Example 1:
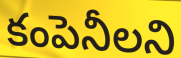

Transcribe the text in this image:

కంపెనీలని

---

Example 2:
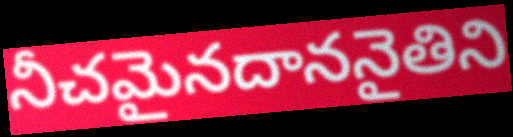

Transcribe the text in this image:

నీచమైనదాననైతిని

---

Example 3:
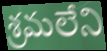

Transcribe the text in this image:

శ్రమలేని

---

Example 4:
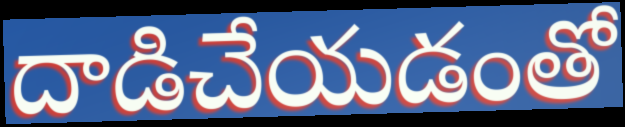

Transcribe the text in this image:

దాడిచేయడంతో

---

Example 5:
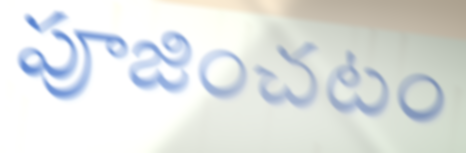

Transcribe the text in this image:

పూజించటం